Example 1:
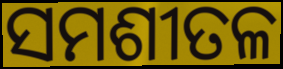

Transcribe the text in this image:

ସମଶୀତଳ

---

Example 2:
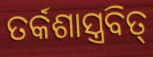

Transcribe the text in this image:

ତର୍କଶାସ୍ତ୍ରବିତ୍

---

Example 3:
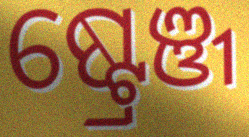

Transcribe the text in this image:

ଷ୍ଟ୍ରେଞ୍ଜ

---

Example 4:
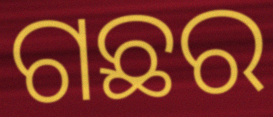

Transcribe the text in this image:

ଗଛର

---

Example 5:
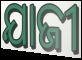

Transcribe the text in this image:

ଯାଜୀ